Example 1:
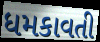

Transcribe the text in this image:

ધમકાવતી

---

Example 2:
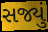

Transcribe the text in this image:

સજ્યું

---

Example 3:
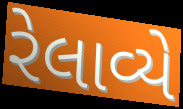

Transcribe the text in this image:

રેલાવ્યે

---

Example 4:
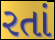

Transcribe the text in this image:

રતાં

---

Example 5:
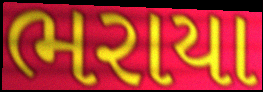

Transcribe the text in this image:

ભરાયા